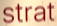
strat